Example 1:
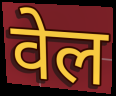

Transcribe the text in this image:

वेल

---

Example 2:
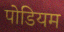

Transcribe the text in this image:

पोडियम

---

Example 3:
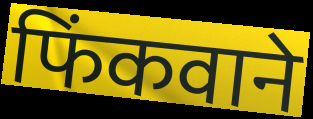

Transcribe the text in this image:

फिंकवाने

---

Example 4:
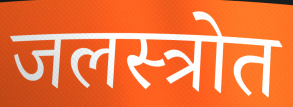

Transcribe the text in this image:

जलस्त्रोत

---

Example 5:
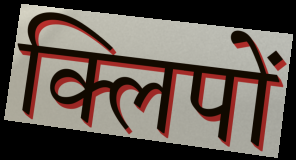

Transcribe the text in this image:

क्लिपों